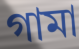
গামা